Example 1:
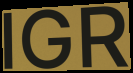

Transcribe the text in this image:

IGR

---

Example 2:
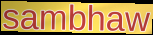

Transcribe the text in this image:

sambhaw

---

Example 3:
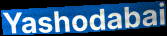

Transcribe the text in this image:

Yashodabai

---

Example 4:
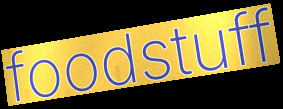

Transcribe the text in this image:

foodstuff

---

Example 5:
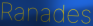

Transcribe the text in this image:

Ranades